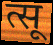
त्सू